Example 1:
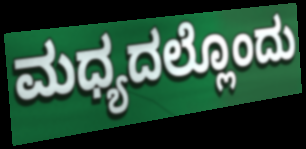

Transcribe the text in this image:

ಮಧ್ಯದಲ್ಲೊಂದು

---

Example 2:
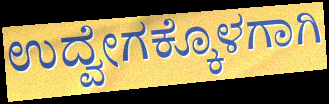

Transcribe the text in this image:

ಉದ್ವೇಗಕ್ಕೊಳಗಾಗಿ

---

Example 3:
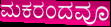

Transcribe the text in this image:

ಮಕರಂದವೂ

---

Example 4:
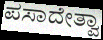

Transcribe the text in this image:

ಪಸಾದೇತ್ವಾ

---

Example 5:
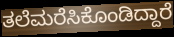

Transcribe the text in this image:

ತಲೆಮರೆಸಿಕೊಂಡಿದ್ದಾರೆ